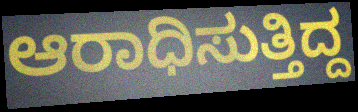
ಆರಾಧಿಸುತ್ತಿದ್ದ